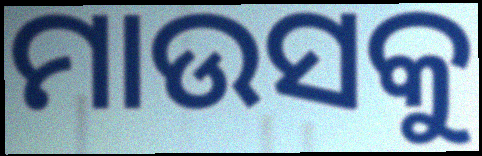
ମାଉସକୁ